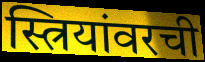
स्त्रियांवरची